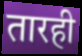
तारही